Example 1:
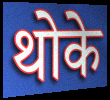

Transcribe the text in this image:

थोके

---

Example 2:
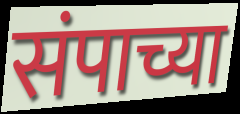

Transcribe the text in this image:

संपाच्या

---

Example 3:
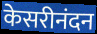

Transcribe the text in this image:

केसरीनंदन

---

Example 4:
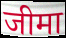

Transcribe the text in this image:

जीमा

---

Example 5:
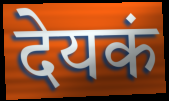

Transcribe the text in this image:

देयकं